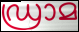
ഡ്രാമ